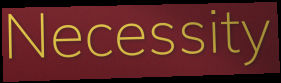
Necessity